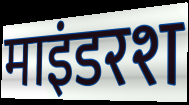
माइंडरश